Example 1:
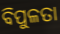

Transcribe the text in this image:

ବିପୁଳତା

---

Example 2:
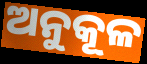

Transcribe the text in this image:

ଅନୁକୂଳ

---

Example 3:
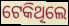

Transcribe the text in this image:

ଟେକିଥିଲେ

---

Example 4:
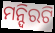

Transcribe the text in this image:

ମନ୍ଦିରଟି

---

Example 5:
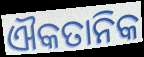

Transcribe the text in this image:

ଐକତାନିକ